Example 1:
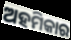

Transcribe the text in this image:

ଅହମିକାର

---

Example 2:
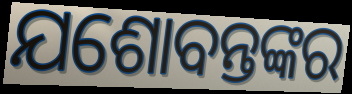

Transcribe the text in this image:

ଯଶୋବନ୍ତଙ୍କର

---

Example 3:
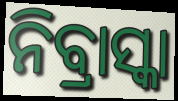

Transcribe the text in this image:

ନିବ୍ରାସ୍କା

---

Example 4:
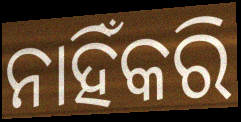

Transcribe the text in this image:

ନାହିଁକରି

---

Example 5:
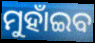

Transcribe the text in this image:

ମୁହାଁଇବ